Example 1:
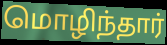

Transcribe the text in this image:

மொழிந்தார்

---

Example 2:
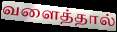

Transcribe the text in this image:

வளைத்தால்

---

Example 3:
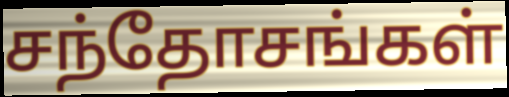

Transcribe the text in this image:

சந்தோசங்கள்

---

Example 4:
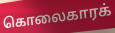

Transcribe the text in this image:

கொலைகாரக்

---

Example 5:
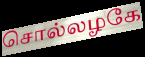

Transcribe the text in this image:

சொல்லழகே